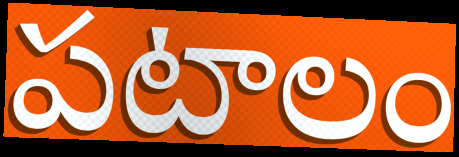
పటాలం